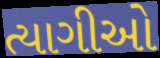
ત્યાગીઓ